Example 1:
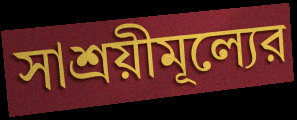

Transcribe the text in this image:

সাশ্রয়ীমূল্যের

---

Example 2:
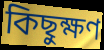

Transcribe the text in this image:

কিছুক্ষণ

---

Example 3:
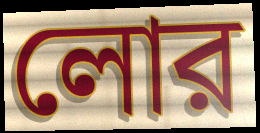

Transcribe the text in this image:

লোর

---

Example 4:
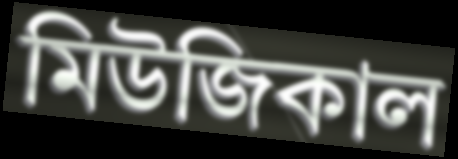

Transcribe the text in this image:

মিউজিকাল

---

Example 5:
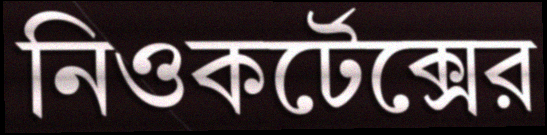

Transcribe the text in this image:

নিওকর্টেক্সের